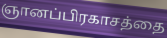
ஞானப்பிரகாசத்தை